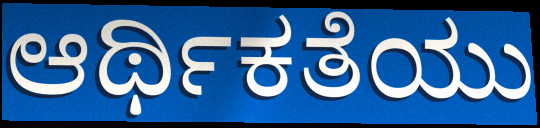
ಆರ್ಥಿಕತೆಯು